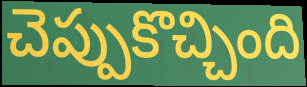
చెప్పుకొచ్చింది